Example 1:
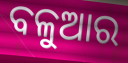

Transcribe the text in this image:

ବଳୁଆର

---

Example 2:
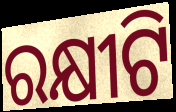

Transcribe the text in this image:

ରକ୍ଷୀଟି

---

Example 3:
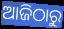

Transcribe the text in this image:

ଆଜିଠାରୁ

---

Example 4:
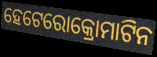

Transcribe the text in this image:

ହେଟେରୋକ୍ରୋମାଟିନ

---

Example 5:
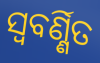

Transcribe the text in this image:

ସ୍ୱବର୍ଣ୍ଣିତ